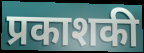
प्रकाशकी